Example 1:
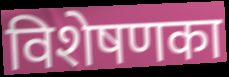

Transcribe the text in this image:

विशेषणका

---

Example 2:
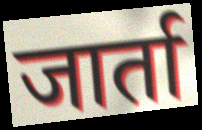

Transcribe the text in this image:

जार्ता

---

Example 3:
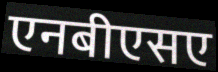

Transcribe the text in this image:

एनबीएसए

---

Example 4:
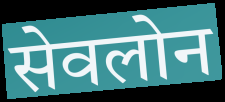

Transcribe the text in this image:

सेवलोन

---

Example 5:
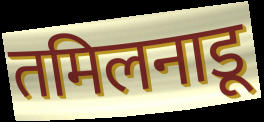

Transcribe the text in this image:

तमिलनाडू